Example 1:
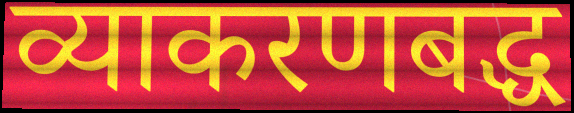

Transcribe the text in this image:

व्याकरणबद्ध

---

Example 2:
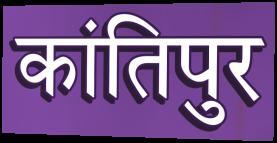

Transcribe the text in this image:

कांतिपुर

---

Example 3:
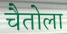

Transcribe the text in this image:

चैतोला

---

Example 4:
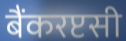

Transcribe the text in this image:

बैंकरप्टसी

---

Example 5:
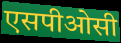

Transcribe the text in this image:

एसपीओसी